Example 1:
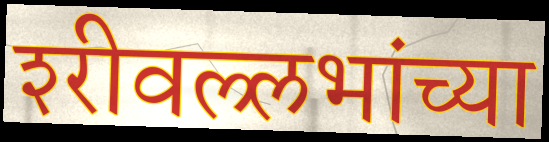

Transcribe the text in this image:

श्रीवल्लभांच्या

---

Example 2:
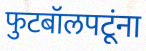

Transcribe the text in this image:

फुटबॉलपटूंना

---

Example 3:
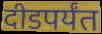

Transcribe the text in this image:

दीडपर्यंत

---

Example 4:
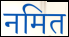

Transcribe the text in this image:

नमित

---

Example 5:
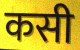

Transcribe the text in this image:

कसी